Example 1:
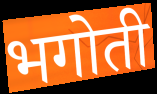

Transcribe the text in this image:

भगोती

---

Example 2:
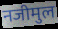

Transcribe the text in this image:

नजीमुल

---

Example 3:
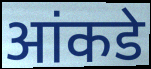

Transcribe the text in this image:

आंकडे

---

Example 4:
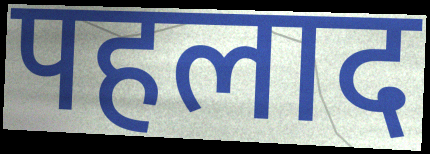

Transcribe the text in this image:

पहलाद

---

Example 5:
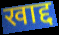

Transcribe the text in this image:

खाद्द